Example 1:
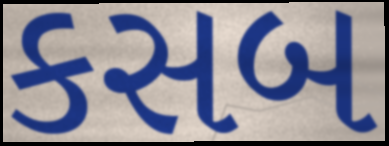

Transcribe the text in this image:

કસબ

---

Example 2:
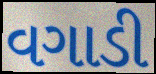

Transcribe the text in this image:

વગાડી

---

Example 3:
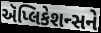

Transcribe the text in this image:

ઍપ્લિકેશન્સને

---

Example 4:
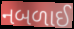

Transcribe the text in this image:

નબળાઈ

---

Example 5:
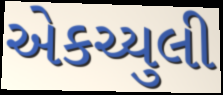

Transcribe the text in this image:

એકચ્યુલી